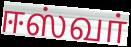
ஈஸ்வர்